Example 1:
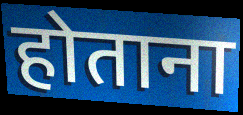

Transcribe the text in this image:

होताना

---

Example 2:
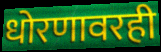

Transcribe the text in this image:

धोरणावरही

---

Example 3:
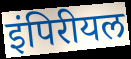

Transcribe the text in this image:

इंपिरीयल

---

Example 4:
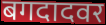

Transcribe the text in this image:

बगदादवर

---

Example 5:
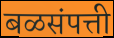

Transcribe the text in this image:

बळसंपत्ती